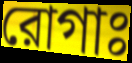
রোগাঃ